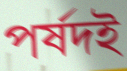
পর্ষদই